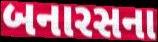
બનારસના